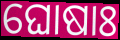
ଘୋଷାଃ